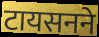
टायसनने